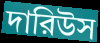
দারিউস